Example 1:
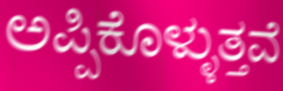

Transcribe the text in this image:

ಅಪ್ಪಿಕೊಳ್ಳುತ್ತವೆ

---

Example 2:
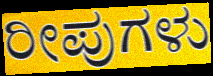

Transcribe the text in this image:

ರೀಪುಗಳು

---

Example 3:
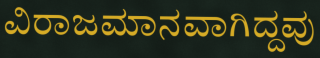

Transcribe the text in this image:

ವಿರಾಜಮಾನವಾಗಿದ್ದವು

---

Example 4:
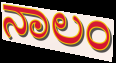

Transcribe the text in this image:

ನಾಲಂ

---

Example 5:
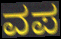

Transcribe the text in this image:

ವಪ